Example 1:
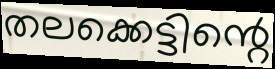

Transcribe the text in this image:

തലക്കെട്ടിന്റെ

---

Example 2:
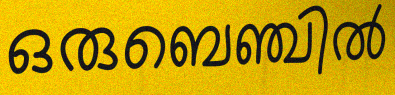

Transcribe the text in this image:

ഒരുബെഞ്ചിൽ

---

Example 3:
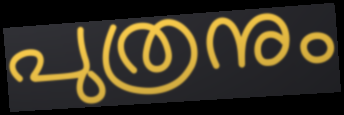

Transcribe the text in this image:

പുത്രനും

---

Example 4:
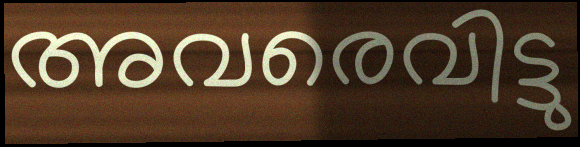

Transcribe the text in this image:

അവരെവിട്ടു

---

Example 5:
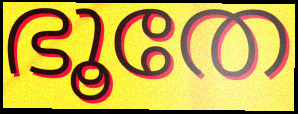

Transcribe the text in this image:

ഭൂതേ